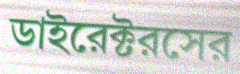
ডাইরেক্টরসের